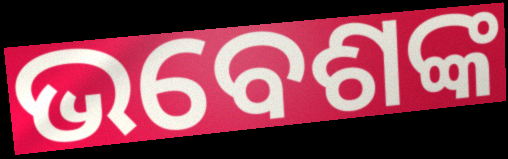
ଭବେଶଙ୍କ